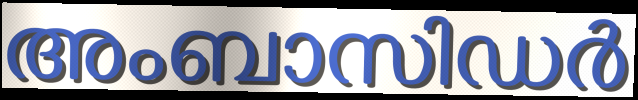
അംബാസിഡർ